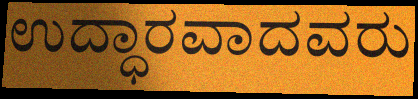
ಉದ್ಧಾರವಾದವರು